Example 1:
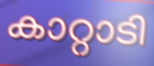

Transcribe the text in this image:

കാറ്റാടി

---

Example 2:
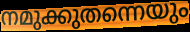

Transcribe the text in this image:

നമുക്കുതന്നെയും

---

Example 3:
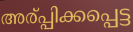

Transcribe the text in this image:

അര്പ്പിക്കപ്പെട്ട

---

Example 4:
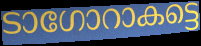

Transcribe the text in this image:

ടാഗോറാകട്ടെ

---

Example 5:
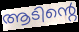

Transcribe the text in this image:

ആടിന്റെ